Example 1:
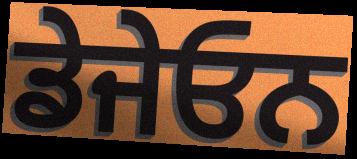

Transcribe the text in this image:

ਡੇਜੇਓਨ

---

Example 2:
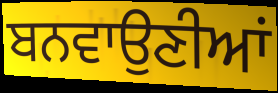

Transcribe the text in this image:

ਬਨਵਾਉਣੀਆਂ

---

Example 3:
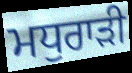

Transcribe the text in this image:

ਮਧੁਰਾੜੀ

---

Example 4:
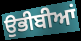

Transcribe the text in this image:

ਉਭੀਬੀਆਂ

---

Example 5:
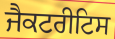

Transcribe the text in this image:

ਜੈਕਟਰੀਟਿਸ